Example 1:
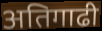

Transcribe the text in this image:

अतिगाढी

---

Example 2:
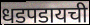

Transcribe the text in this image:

धडपडायची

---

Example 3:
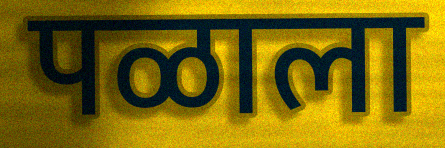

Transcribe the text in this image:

पळाला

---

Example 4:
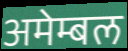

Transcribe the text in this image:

अमेम्बल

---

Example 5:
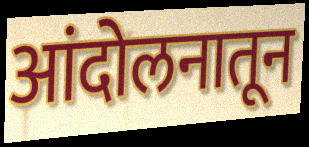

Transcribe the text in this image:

आंदोलनातून